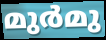
മുർമു